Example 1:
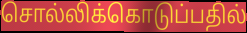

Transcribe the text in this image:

சொல்லிக்கொடுப்பதில்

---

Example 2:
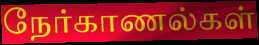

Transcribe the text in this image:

நேர்காணல்கள்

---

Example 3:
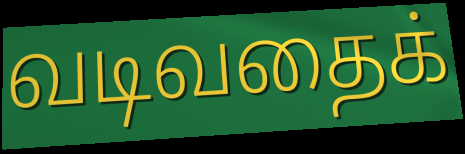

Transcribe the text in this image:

வடிவதைக்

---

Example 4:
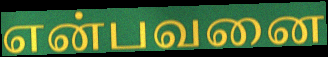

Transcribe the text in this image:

என்பவனை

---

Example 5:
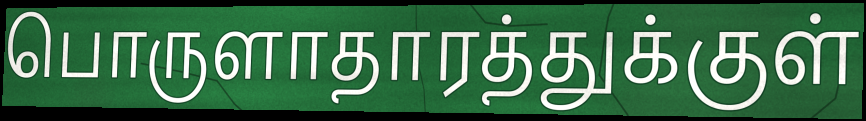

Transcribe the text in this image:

பொருளாதாரத்துக்குள்